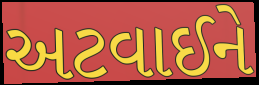
અટવાઈને